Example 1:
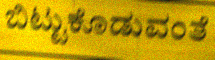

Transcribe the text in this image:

ಬಿಟ್ಟುಕೊಡುವಂತೆ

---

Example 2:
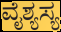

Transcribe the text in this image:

ವೈಶ್ಯಸ್ಯ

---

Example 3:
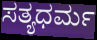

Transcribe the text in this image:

ಸತ್ಯಧರ್ಮ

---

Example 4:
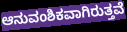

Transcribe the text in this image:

ಆನುವಂಶಿಕವಾಗಿರುತ್ತವೆ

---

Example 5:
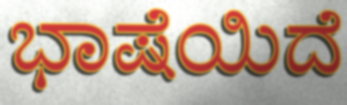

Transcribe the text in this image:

ಭಾಷೆಯಿದೆ